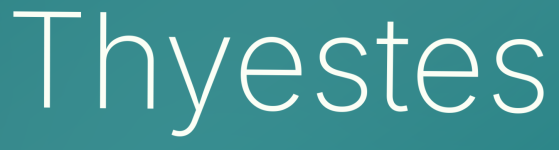
Thyestes